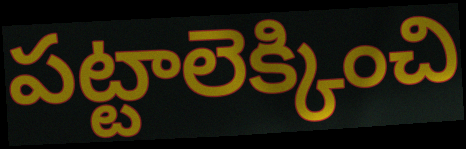
పట్టాలెక్కించి